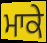
ਮਾਕੇ